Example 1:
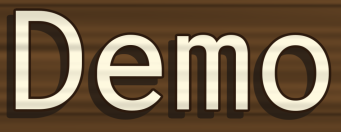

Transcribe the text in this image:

Demo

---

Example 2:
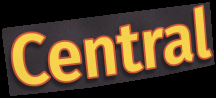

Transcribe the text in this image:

Central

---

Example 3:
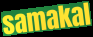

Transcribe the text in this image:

samakal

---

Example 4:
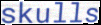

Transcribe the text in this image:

skulls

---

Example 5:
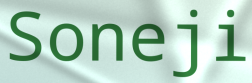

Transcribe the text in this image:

Soneji